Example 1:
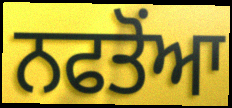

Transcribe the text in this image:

ਨਫਤੋਂਆ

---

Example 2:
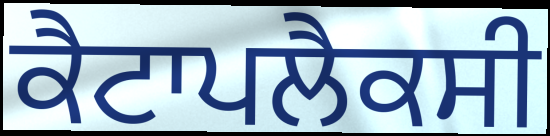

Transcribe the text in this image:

ਕੈਟਾਪਲੈਕਸੀ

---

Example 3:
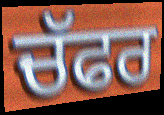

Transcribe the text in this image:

ਚੱਫਰ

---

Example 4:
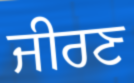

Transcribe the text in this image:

ਜੀਰਣ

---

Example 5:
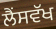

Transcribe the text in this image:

ਲੈਂਸਵੱਖ